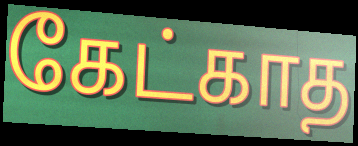
கேட்காத